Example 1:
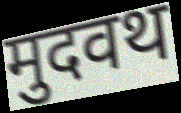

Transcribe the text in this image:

मुदवथ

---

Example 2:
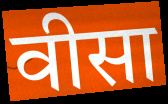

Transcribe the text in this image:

वीसा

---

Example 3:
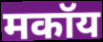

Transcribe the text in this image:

मकॉय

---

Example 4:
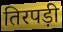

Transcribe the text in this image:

तिरपड़ी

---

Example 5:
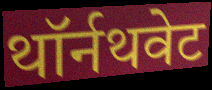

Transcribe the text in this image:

थॉर्नथवेट